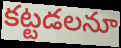
కట్టడలనూ